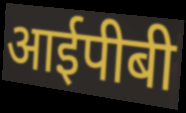
आईपीबी